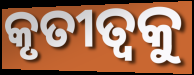
କୃତୀତ୍ଵକୁ